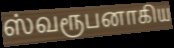
ஸ்வரூபனாகிய